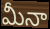
మీనా